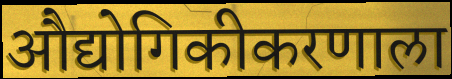
औद्योगिकीकरणाला